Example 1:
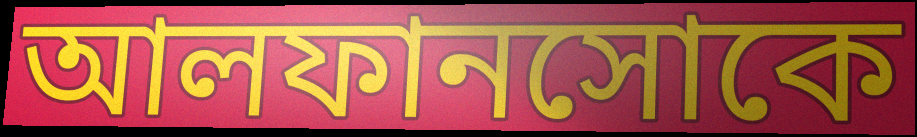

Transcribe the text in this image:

আলফানসোকে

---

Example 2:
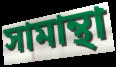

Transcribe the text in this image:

সামান্থা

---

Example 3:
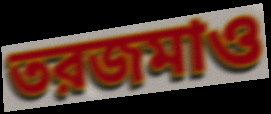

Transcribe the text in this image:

তরজমাও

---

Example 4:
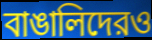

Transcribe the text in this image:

বাঙালিদেরও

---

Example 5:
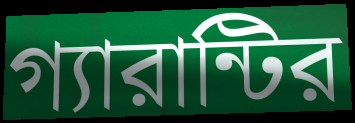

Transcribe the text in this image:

গ্যারান্টির